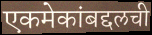
एकमेकांबद्दलची